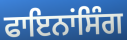
ਫਾਇਨਾਂਸਿੰਗ